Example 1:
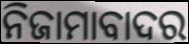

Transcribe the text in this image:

ନିଜାମାବାଦର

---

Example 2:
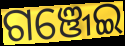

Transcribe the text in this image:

ଗଞ୍ଜେଇ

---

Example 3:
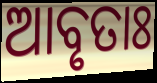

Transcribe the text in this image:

ଆବୃତାଃ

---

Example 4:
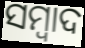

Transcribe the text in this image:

ସମ୍ବାଦ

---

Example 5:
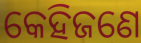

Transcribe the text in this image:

କେହିଜଣେ